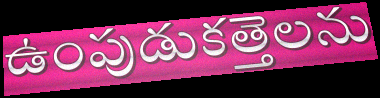
ఉంపుడుకత్తెలను